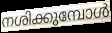
നശിക്കുമ്പോൾ